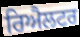
ਰਿਐਲਟਰ